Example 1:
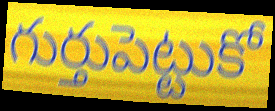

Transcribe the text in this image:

గుర్తుపెట్టుకో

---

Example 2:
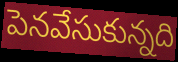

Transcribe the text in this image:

పెనవేసుకున్నది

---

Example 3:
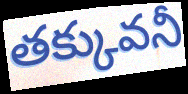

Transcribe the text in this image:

తక్కువనీ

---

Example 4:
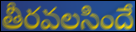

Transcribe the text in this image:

తీరవలసిందే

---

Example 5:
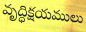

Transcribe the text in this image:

వృద్ధిక్షయములు